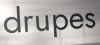
drupes